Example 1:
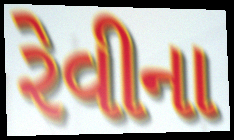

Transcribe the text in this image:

રેવીના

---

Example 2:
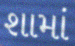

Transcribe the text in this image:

શામાં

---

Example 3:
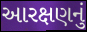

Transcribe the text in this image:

આરક્ષણનું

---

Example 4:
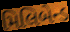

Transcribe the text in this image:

મિલિબેન્ડ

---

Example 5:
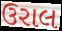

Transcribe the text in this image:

ઉરાલ